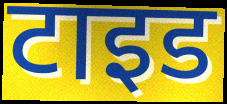
टाइड